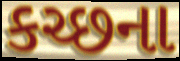
કચ્છના